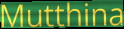
Mutthina